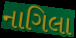
નાગિલા